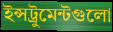
ইন্সট্রুমেন্টগুলো